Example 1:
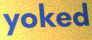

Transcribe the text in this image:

yoked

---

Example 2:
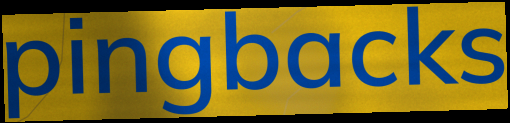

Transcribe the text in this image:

pingbacks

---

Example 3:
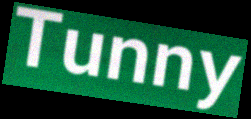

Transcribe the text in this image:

Tunny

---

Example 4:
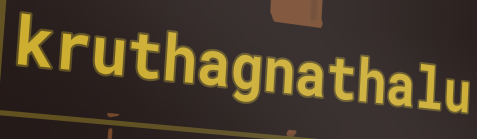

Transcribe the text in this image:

kruthagnathalu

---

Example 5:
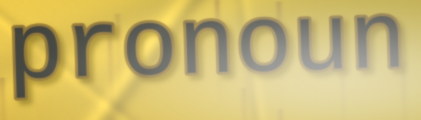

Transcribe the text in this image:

pronoun